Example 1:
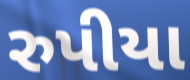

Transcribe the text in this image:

રુપીયા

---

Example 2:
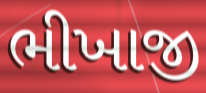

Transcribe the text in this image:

ભીખાજી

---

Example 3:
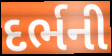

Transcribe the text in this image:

દર્ભની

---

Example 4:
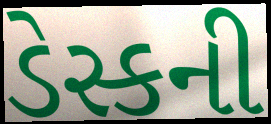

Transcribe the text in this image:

ડેસ્કની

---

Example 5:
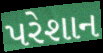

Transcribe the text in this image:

પરેશાન